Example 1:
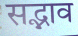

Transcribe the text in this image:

सद्भाव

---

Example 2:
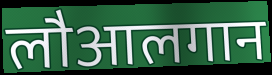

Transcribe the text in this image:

लौआलगान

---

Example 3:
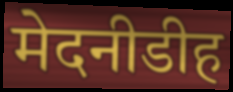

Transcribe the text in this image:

मेदनीडीह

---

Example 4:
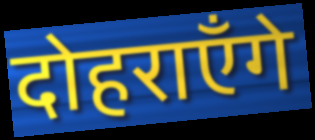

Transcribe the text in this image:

दोहराएँगे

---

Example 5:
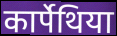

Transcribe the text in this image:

कार्पेथिया